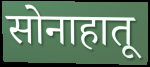
सोनाहातू